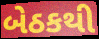
બેઠકથી